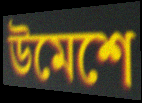
উমেশে